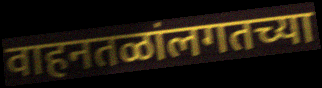
वाहनतळांलगतच्या